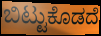
ಬಿಟ್ಟುಕೊಡದೆ